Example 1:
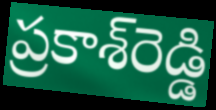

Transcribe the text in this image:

ప్రకాశ్‌రెడ్డి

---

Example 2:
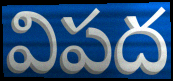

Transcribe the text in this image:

విపద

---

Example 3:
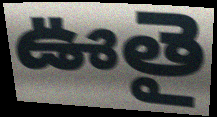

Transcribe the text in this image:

ఊతై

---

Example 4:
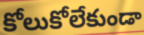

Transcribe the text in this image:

కోలుకోలేకుండా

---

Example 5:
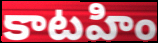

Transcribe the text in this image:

కాటహిం